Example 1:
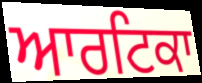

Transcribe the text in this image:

ਆਰਟਿਕਾ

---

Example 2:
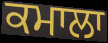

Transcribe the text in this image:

ਕਮਾਲਾ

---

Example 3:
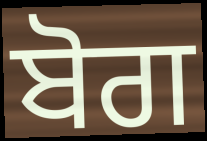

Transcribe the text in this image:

ਬੋਗ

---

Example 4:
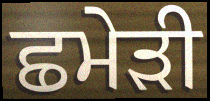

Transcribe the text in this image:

ਛਮੇੜੀ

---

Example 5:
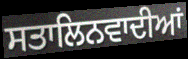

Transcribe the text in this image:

ਸਤਾਲਿਨਵਾਦੀਆਂ